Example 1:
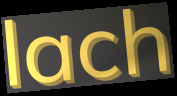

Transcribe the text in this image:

lach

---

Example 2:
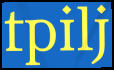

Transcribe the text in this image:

tpilj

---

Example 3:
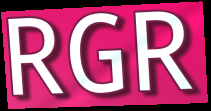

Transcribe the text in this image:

RGR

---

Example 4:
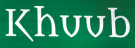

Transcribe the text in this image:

Khuub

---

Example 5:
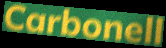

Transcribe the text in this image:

Carbonell